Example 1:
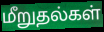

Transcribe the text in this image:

மீறுதல்கள்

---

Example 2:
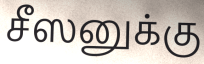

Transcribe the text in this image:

சீஸனுக்கு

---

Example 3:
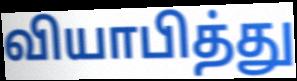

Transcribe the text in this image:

வியாபித்து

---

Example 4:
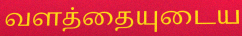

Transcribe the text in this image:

வளத்தையுடைய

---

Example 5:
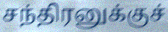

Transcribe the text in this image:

சந்திரனுக்குச்